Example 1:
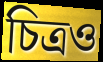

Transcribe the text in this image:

চিত্রও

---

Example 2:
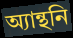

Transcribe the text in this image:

অ্যান্থনি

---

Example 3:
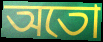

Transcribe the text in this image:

অতো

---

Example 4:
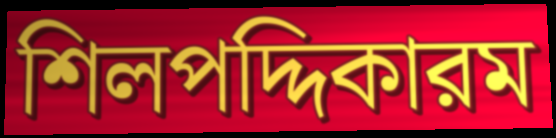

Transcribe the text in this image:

শিলপদ্দিকারম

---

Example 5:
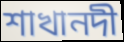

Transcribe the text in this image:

শাখানদী